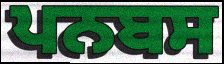
ਪਨਬਸ